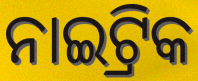
ନାଇଟ୍ରିକ